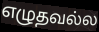
எழுதவல்ல